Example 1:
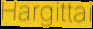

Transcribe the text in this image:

Hargittai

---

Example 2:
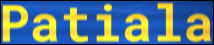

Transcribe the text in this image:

Patiala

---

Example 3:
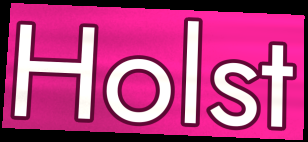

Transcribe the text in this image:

Holst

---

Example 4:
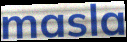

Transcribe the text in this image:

masla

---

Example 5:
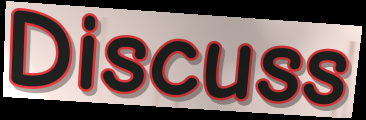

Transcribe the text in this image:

Discuss